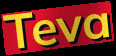
Teva